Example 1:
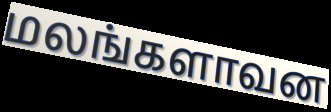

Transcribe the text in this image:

மலங்களாவன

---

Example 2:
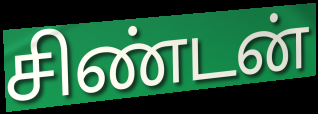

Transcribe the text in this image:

சிண்டன்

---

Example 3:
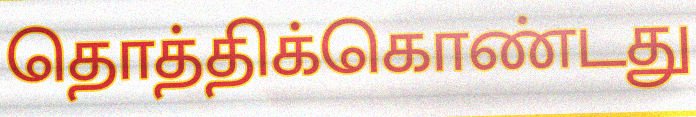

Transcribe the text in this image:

தொத்திக்கொண்டது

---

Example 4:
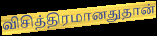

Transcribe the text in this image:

விசித்திரமானதுதான்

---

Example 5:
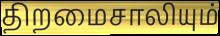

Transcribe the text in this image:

திறமைசாலியும்